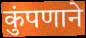
कुंपणाने